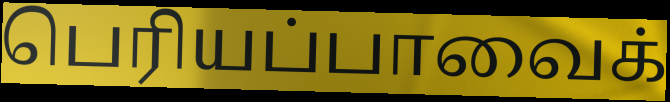
பெரியப்பாவைக்